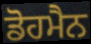
ਡੋਹਮੈਨ